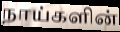
நாய்களின்